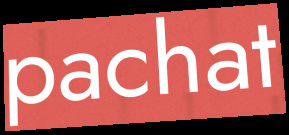
pachat